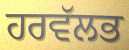
ਹਰਵੱਲਭ